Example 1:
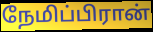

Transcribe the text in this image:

நேமிப்பிரான்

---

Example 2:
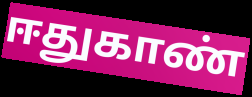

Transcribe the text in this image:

ஈதுகாண்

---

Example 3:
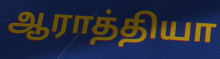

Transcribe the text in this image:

ஆராத்தியா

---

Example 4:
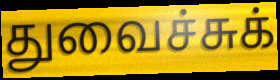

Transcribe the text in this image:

துவைச்சுக்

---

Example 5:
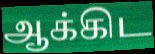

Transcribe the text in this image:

ஆக்கிட